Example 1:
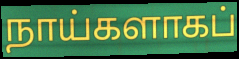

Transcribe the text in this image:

நாய்களாகப்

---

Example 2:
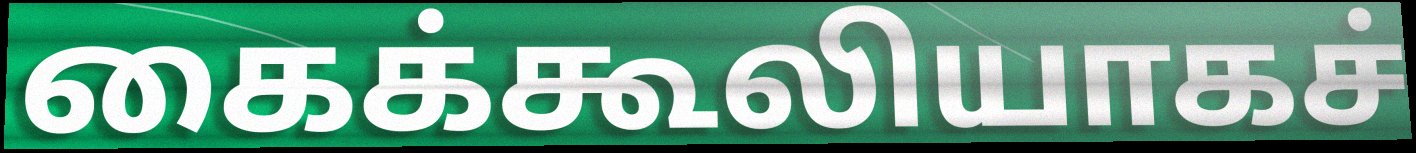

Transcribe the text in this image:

கைக்கூலியாகச்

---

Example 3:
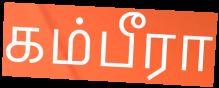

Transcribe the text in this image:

கம்பீரா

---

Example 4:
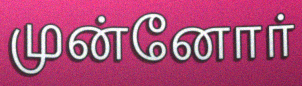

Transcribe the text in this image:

முன்னோர்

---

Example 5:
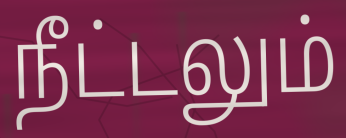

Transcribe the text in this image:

நீட்டலும்